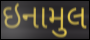
ઇનામુલ